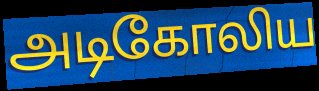
அடிகோலிய